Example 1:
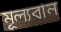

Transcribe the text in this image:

মূল্যবান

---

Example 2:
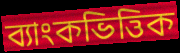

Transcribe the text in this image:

ব্যাংকভিত্তিক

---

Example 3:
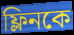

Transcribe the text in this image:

ফ্লিনকে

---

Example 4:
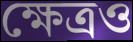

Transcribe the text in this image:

ক্ষেত্রও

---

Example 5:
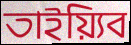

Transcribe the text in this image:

তাইয়্যিব